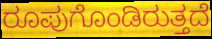
ರೂಪುಗೊಂಡಿರುತ್ತದೆ